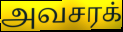
அவசரக்